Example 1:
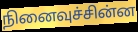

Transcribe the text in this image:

நினைவுச்சின்ன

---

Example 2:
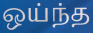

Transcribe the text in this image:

ஒய்ந்த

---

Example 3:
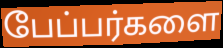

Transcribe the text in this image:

பேப்பர்களை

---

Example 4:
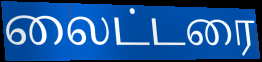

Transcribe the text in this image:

லைட்டரை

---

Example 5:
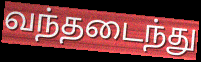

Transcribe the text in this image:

வந்தடைந்து